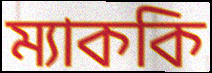
ম্যাককি